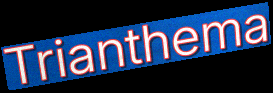
Trianthema